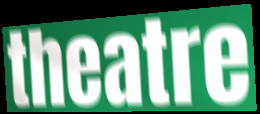
theatre